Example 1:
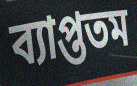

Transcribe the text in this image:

ব্যাপ্ততম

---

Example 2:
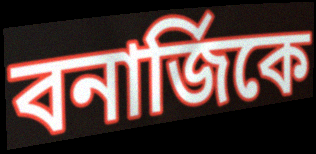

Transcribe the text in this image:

বনার্জিকে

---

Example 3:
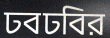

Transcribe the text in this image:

ঢবঢবির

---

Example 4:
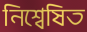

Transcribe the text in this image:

নিশ্বেষিত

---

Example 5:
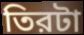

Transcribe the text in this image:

তিরটা